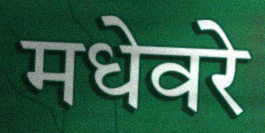
मधेवरे